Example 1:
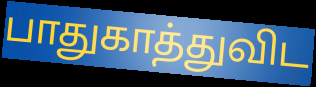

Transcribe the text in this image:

பாதுகாத்துவிட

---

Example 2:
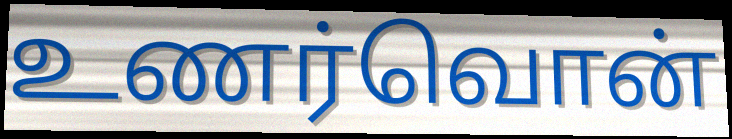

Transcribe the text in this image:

உணர்வொன்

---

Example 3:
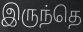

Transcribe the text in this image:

இருந்தெ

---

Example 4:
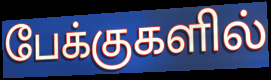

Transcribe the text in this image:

பேக்குகளில்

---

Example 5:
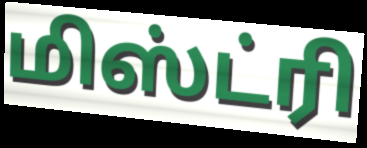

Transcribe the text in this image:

மிஸ்ட்ரி